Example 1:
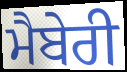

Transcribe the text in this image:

ਮੈਬੇਰੀ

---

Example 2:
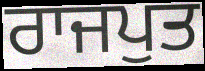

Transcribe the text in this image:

ਰਾਜਪੁਤ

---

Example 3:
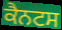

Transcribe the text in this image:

ਕੈਨਟਸ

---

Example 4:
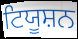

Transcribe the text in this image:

ਟਿਯੂਸ਼ਨ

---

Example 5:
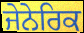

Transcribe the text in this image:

ਜੇਨੇਰਿਕ